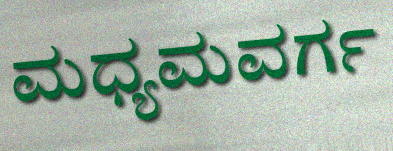
ಮಧ್ಯಮವರ್ಗ